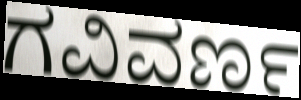
ಗವಿವರ್ಣ